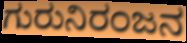
ಗುರುನಿರಂಜನ